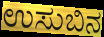
ಉಸುಬಿನ